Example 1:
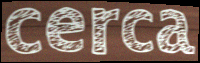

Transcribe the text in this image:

cerca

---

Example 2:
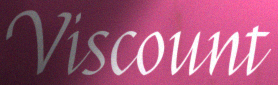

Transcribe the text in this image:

Viscount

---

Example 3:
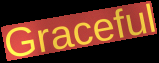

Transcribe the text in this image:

Graceful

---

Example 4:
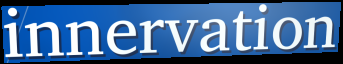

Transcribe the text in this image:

innervation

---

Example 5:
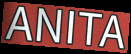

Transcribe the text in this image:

ANITA